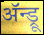
ॲन्ड्रू